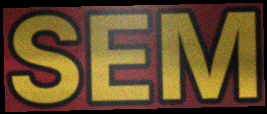
SEM